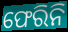
ଫେରିନି